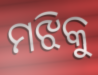
ମଝିକୁ